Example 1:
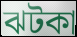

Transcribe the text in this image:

ঝটকা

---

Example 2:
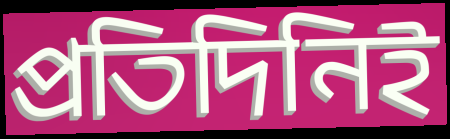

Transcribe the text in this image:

প্রতিদিনিই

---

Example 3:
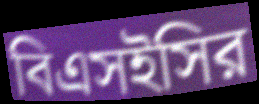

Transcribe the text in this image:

বিএসইসির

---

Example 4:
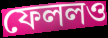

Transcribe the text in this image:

ফেললও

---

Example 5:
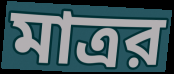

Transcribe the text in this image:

মাত্রর